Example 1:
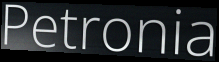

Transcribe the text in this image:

Petronia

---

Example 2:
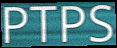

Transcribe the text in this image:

PTPS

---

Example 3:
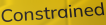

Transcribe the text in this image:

Constrained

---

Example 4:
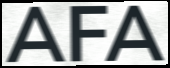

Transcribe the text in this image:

AFA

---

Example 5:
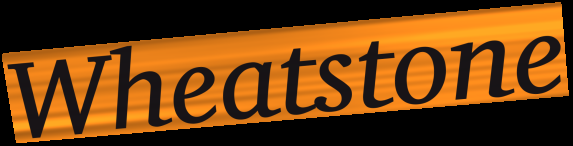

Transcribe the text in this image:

Wheatstone